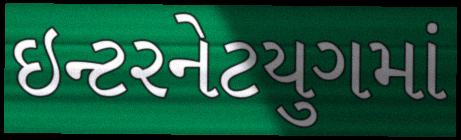
ઇન્ટરનેટયુગમાં